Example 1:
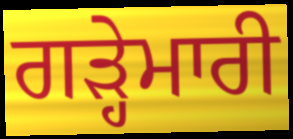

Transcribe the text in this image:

ਗੜ੍ਹੇਮਾਰੀ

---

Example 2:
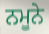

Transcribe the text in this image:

ਨਮੂਨੇ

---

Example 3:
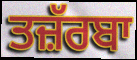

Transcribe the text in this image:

ਤਜ਼ੱਰਬਾ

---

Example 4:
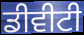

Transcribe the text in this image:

ਡੀਵੀਟੀ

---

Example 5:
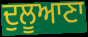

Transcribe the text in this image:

ਦੁਲੂਆਣਾ